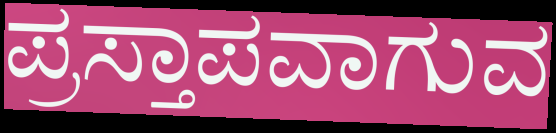
ಪ್ರಸ್ತಾಪವಾಗುವ